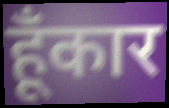
हूँकार